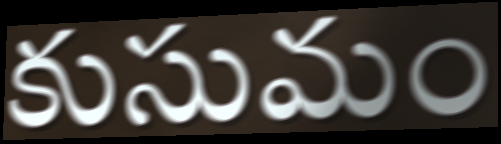
కుసుమం